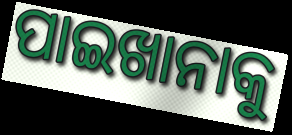
ପାଇଖାନାକୁ